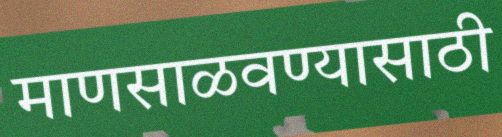
माणसाळवण्यासाठी